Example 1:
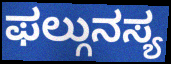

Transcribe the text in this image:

ಫಲ್ಗುನಸ್ಯ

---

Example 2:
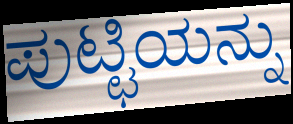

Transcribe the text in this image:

ಪುಟ್ಟಿಯನ್ನು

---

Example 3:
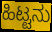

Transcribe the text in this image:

ಹಿಟ್ಟನು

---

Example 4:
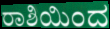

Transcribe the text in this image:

ರಾಶಿಯಿಂದ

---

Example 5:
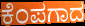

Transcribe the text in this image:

ಕೆಂಪಗಾದ